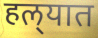
हल्यात